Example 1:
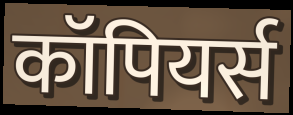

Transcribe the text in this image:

कॉपियर्स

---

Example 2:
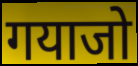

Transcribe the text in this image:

गयाजो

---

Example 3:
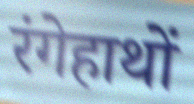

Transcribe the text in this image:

रंगेहाथों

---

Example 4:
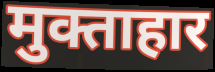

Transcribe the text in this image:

मुक्ताहार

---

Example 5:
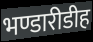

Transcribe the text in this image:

भण्डारीडीह